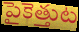
పైకెత్తుట